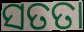
ସତତା